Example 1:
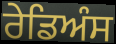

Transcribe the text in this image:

ਰੇਡਿਅੰਸ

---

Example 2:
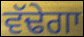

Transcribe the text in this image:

ਵੱਢੇਗਾ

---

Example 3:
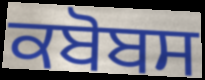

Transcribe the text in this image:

ਕਬੋਬਸ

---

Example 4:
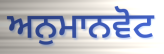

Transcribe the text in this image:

ਅਨੁਮਾਨਵੋਟ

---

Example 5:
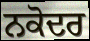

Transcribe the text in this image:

ਨਕੋਦਰ